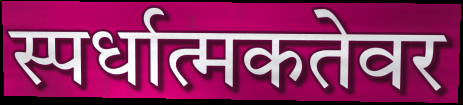
स्पर्धात्मकतेवर